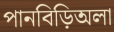
পানবিড়িঅলা